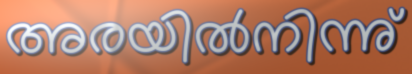
അരയിൽനിന്നു്